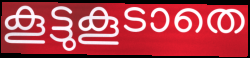
കൂട്ടുകൂടാതെ